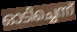
ഓടിച്ചെന്ന്